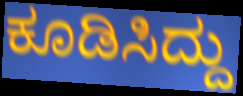
ಕೂಡಿಸಿದ್ದು